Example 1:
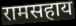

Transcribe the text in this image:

रामसहाय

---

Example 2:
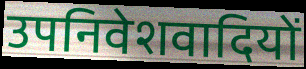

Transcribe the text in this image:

उपनिवेशवादियों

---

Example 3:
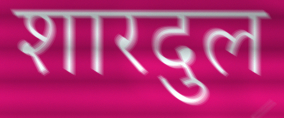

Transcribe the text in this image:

शारदुल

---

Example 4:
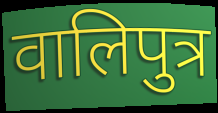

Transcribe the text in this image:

वालिपुत्र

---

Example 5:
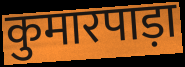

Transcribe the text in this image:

कुमारपाड़ा